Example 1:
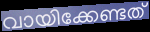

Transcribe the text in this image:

വായിക്കേണ്ടത്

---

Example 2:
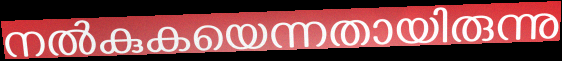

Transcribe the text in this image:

നൽകുകയെന്നതായിരുന്നു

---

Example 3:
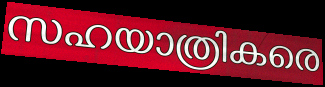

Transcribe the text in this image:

സഹയാത്രികരെ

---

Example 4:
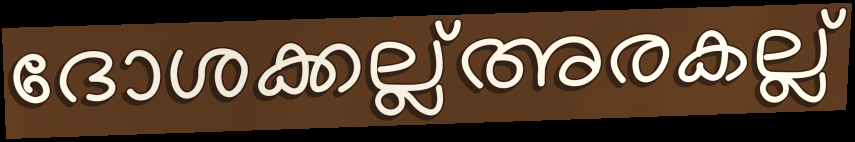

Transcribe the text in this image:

ദോശക്കല്ല്അരകല്ല്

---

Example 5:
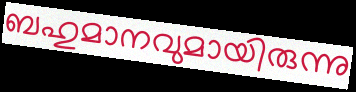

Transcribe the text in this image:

ബഹുമാനവുമായിരുന്നു